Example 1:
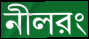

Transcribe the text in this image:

নীলরং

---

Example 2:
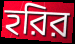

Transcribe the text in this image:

হরির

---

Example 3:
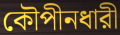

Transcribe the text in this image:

কৌপীনধারী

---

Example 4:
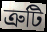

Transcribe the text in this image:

ত্রুটি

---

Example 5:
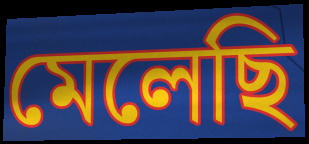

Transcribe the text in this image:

মেলেছি